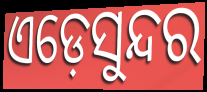
ଏଡ଼େସୁନ୍ଦର